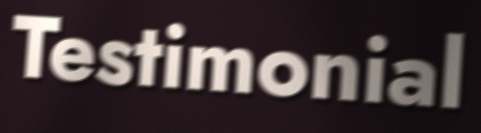
Testimonial